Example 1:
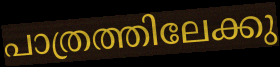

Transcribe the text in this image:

പാത്രത്തിലേക്കു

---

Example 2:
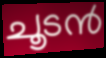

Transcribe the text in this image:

ചൂടൻ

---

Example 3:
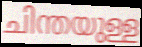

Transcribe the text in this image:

ചിന്തയുള്ള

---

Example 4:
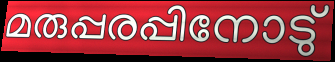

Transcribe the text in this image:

മരുപ്പരപ്പിനോടു്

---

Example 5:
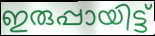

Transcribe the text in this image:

ഇരുപ്പായിട്ട്